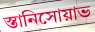
স্তানিসোয়াভ